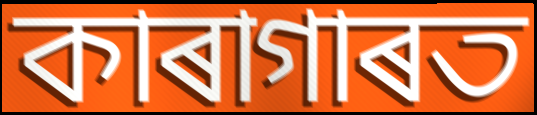
কাৰাগাৰত